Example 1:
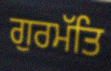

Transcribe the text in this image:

ਗੁਰਮੱਤਿ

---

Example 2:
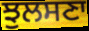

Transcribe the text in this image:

ਝੁਲਸਣਾ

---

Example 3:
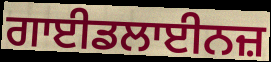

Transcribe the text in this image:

ਗਾਈਡਲਾਈਨਜ਼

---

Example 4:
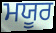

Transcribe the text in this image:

ਮਯੂਰ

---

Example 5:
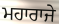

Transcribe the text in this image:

ਮਹਾਰਾਜੇ